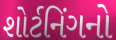
શોર્ટનિંગનો